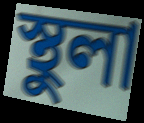
স্থুলা